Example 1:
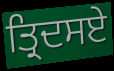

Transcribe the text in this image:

ਤ੍ਰਿਦਸਏ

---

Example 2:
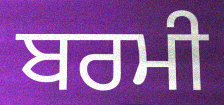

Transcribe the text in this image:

ਬਰਮੀ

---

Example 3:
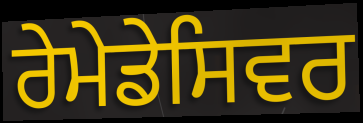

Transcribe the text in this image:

ਰੇਮੇਡੇਸਿਵਰ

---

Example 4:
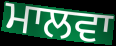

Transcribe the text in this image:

ਮਾਲਵਾ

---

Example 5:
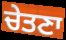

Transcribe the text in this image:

ਚੇਤਣਾ